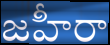
జహీరా